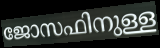
ജോസഫിനുള്ള